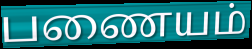
பணையம்